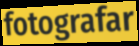
fotografar